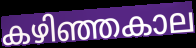
കഴിഞ്ഞകാല